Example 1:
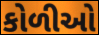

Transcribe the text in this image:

કોળીઓ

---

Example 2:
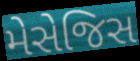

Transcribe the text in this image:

મેસેજિસ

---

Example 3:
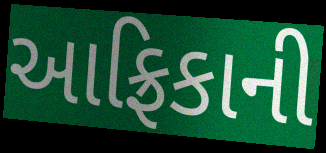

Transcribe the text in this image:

આફ્રિકાની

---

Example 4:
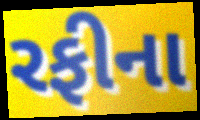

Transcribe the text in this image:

રફીના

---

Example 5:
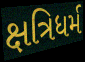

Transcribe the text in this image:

ક્ષત્રિધર્મ